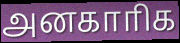
அனகாரிக